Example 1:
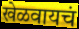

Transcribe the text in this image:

खेळवायचं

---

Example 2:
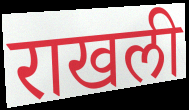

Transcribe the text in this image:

राखली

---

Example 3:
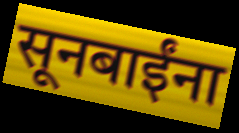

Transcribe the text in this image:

सूनबाईंना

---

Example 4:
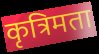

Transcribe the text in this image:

कृत्रिमता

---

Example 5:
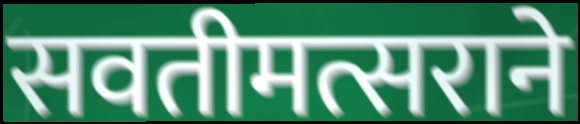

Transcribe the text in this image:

सवतीमत्सराने